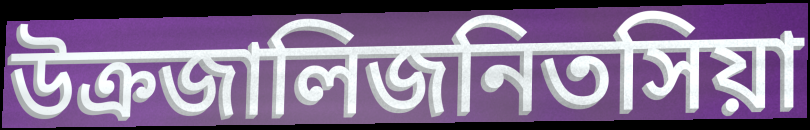
উক্রজালিজনিতসিয়া